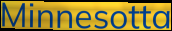
Minnesotta